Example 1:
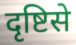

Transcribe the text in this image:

दृष्टिसे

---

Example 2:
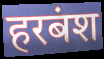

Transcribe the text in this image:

हरबंश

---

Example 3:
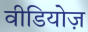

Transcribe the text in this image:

वीडियोज़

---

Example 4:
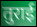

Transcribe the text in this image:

तुराई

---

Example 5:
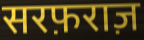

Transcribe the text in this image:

सरफ़राज़